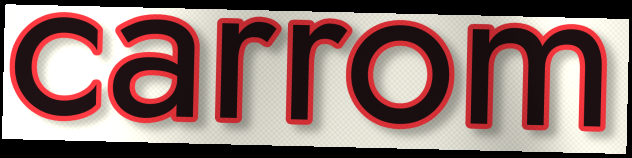
carrom